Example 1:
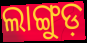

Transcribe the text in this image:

ଲାଙ୍ଗୁଡ଼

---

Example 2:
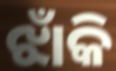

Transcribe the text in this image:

ଝାଁକି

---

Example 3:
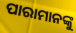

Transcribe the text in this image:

ପାରାମାନଙ୍କୁ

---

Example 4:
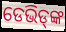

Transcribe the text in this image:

ଡେଭିଡ୍‌ଙ୍କ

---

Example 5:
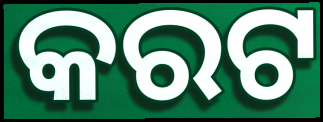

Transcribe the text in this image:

କରଟ